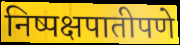
निष्पक्षपातीपणे